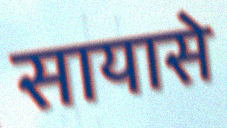
सायासे